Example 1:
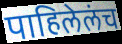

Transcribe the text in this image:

पाहिलेलंच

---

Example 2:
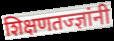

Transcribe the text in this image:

शिक्षणतज्ज्ञांनी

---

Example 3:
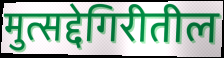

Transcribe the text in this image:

मुत्सद्देगिरीतील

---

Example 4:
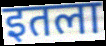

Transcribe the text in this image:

इतला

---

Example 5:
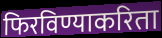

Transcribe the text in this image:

फिरविण्याकरिता